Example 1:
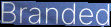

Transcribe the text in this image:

Branded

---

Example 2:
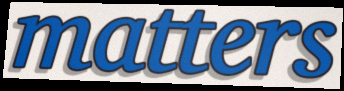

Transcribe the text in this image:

matters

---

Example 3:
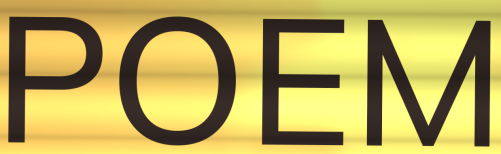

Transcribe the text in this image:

POEM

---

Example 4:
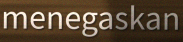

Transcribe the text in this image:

menegaskan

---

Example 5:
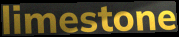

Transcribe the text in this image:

limestone